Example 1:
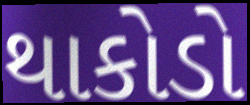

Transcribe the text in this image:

થાકોડો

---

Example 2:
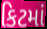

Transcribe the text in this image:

કિટમાં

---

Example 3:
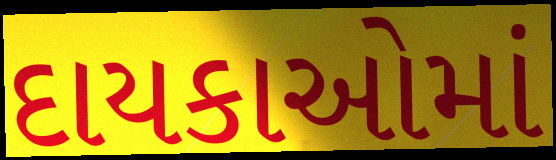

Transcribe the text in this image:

દાયકાઓમાં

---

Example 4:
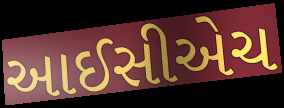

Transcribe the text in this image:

આઈસીએચ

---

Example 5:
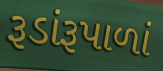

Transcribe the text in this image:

રૂડાંરૂપાળાં